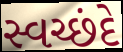
સ્વચ્છંદે